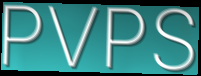
PVPS